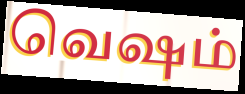
வெஷம்